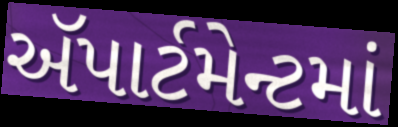
ઍપાર્ટમેન્ટમાં